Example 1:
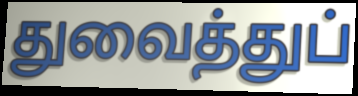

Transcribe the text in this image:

துவைத்துப்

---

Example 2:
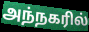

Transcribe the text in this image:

அந்நகரில்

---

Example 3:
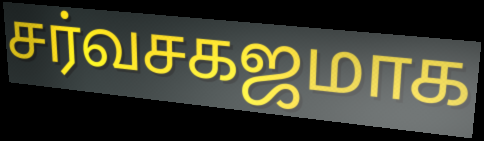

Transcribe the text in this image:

சர்வசகஜமாக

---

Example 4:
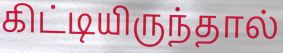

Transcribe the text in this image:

கிட்டியிருந்தால்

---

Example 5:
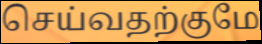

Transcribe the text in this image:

செய்வதற்குமே